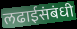
लढाईसंबंधी